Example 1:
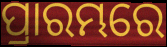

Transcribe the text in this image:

ପ୍ରାରମ୍ଭରେ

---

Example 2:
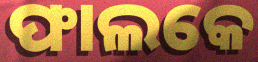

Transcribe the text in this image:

ଫାଲକେ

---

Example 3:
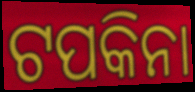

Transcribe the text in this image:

ଟପକିନା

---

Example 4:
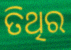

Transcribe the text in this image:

ତିଥିର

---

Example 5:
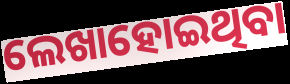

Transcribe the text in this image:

ଲେଖାହୋଇଥିବା